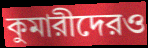
কুমারীদেরও